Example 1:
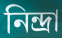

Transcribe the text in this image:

নিন্দ্ৰা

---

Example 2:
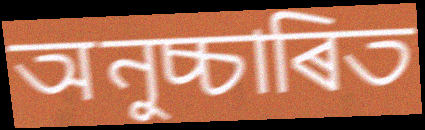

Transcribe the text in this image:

অনুচ্চাৰিত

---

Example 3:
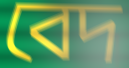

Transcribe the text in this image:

বেদ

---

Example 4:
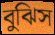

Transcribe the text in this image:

বুঝিস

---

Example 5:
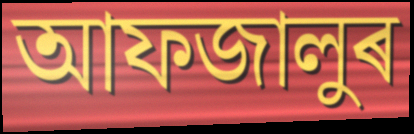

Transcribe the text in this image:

আফজালুৰ